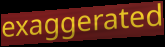
exaggerated